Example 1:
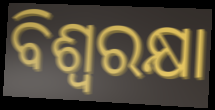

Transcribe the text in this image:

ବିଶ୍ୱରକ୍ଷା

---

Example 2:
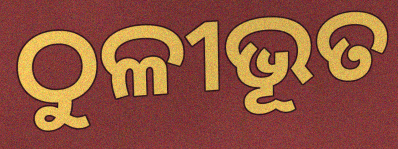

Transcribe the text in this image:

ଠୁଳୀଭୂତ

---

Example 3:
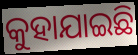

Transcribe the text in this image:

କୁହାଯାଇଛି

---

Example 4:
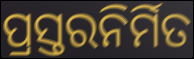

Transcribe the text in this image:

ପ୍ରସ୍ତରନିର୍ମିତ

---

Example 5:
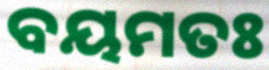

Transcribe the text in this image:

ବୟମତଃ